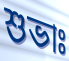
শুভাঃ